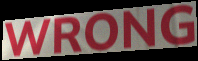
WRONG